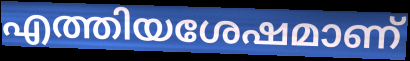
എത്തിയശേഷമാണ്